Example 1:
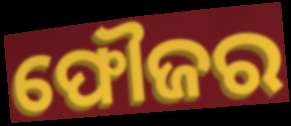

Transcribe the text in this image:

ଫୌଜର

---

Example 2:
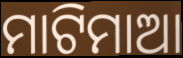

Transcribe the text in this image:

ମାଟିମାଆ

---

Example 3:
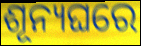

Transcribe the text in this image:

ଶୂନ୍ୟଘରେ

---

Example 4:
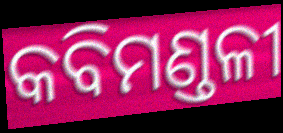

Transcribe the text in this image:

କବିମଣ୍ଡଳୀ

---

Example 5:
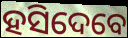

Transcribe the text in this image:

ହସିଦେବେ